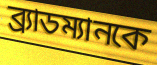
ব্র্যাডম্যানকে